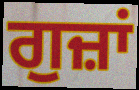
ਗੁਜ਼ਾਂ